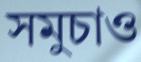
সমুচাও